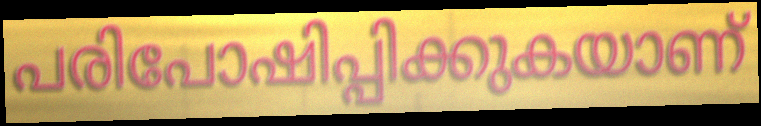
പരിപോഷിപ്പിക്കുകയാണ്